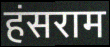
हंसराम